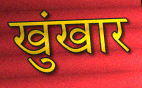
खुंखार